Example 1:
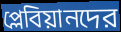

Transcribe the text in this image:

প্লেবিয়ানদের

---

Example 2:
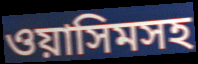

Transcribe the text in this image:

ওয়াসিমসহ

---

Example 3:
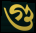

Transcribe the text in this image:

গু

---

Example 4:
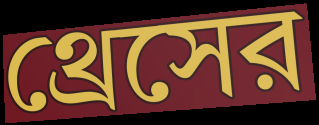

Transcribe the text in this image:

থ্রেসের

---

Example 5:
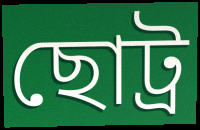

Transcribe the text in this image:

ছোট্র